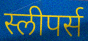
स्लीपर्स